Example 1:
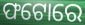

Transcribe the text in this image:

ଫଟୋରେ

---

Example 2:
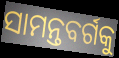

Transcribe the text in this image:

ସାମନ୍ତବର୍ଗକୁ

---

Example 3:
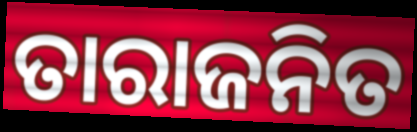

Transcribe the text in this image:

ତାରାଜନିତ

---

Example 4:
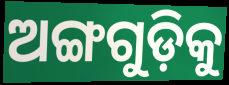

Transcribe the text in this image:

ଅଙ୍ଗଗୁଡ଼ିକୁ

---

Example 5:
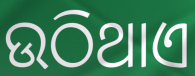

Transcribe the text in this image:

ଉଠିଥାଏ